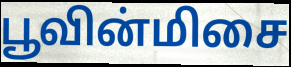
பூவின்மிசை